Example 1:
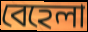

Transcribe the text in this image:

বেহেলা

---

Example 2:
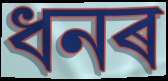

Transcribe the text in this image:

ধনৰ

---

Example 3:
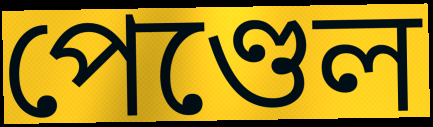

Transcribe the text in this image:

পেণ্ডেল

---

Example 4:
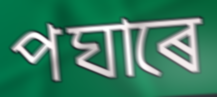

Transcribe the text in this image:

পঘাৰে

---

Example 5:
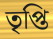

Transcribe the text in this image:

তৃপ্তি